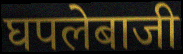
घपलेबाजी